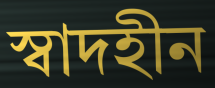
স্বাদহীন